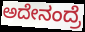
ಅದೇನಂದ್ರೆ